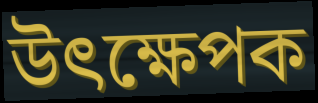
উৎক্ষেপক